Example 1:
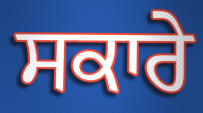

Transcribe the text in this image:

ਸਕਾਰੇ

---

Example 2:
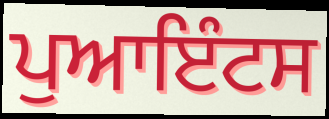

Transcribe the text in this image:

ਪੁਆਇੰਟਸ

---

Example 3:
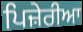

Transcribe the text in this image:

ਪਿਜ਼ੇਰੀਆ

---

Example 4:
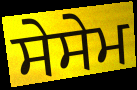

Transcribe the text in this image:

ਸੇਸੇਮ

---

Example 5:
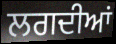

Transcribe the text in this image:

ਲਗਦੀਆਂ